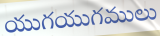
యుగయుగములు